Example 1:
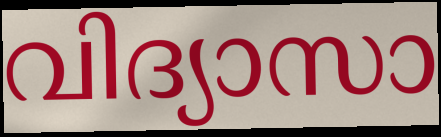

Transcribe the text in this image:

വിദ്യാസാ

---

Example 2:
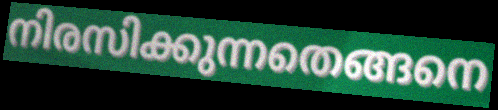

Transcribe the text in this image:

നിരസിക്കുന്നതെങ്ങനെ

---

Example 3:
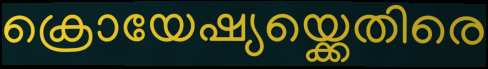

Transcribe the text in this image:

ക്രൊയേഷ്യയ്ക്കെതിരെ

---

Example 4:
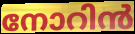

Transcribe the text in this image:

നോറിൻ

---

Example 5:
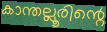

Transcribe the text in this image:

കാന്തല്ലൂരിന്റെ